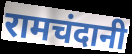
रामचंदानी